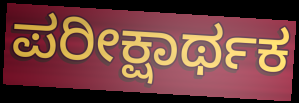
ಪರೀಕ್ಷಾರ್ಥಕ